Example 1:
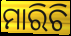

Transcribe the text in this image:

ମାରିଚି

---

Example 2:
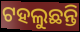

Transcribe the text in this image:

ଟହଲୁଛନ୍ତି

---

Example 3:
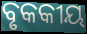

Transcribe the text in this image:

ବୃକକୀୟ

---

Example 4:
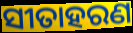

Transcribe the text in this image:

ସୀତାହରଣ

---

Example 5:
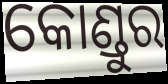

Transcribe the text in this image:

କୋଣ୍ଡୁର